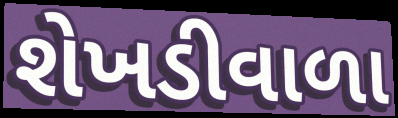
શેખડીવાળા